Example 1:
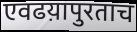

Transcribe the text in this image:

एवढय़ापुरताच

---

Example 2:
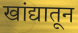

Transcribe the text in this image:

खांद्यातून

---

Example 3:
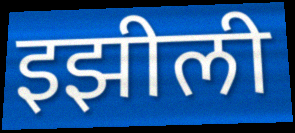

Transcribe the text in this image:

इझीली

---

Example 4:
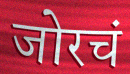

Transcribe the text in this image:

जोरचं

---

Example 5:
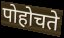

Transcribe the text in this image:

पोहोचते